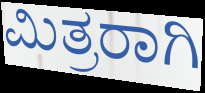
ಮಿತ್ರರಾಗಿ